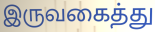
இருவகைத்து